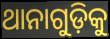
ଥାନାଗୁଡ଼ିକୁ